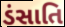
ડંસાતિ